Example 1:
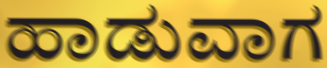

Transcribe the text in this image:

ಹಾಡುವಾಗ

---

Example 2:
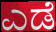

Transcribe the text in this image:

ಎಡೆ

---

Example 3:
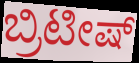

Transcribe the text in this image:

ಬ್ರಿಟೀಷ್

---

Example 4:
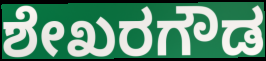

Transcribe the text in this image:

ಶೇಖರಗೌಡ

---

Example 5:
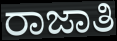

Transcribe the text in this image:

ರಾಜಾತಿ